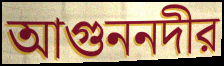
আগুননদীর